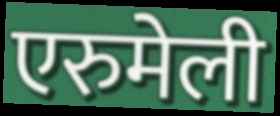
एरुमेली